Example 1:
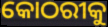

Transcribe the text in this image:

କୋଠରୀକୁ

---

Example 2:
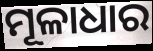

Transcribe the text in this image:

ମୂଳାଧାର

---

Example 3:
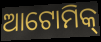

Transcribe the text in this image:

ଆଟୋମିକ୍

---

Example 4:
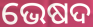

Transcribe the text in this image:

ଭେଷଦ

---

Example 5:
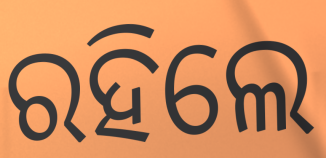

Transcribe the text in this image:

ରହିଲେ